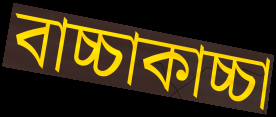
বাচ্চাকাচ্চা